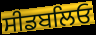
ਸੀਡਬਲਿਓ